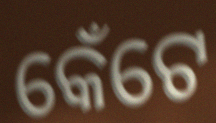
କେଁଟେ